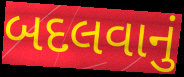
બદલવાનું